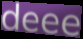
deee